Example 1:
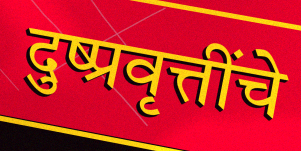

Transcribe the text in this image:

दुष्प्रवृत्तींचे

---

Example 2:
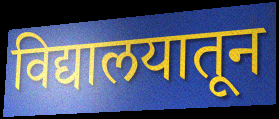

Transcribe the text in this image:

विद्यालयातून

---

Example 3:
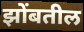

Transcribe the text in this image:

झोंबतील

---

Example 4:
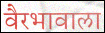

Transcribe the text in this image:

वैरभावाला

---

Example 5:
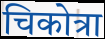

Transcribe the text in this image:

चिकोत्रा